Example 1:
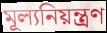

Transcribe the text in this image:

মূল্যনিয়ন্ত্রণ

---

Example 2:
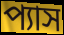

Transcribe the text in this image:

প্যাস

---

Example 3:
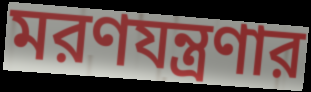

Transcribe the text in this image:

মরণযন্ত্রণার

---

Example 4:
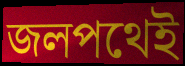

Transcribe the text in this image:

জলপথেই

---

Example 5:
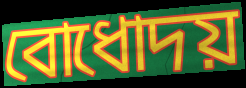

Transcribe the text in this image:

বোধোদয়